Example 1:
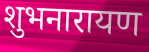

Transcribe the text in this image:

शुभनारायण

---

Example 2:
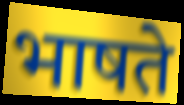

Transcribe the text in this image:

भाषते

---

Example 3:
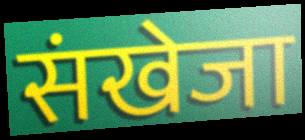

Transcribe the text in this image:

संखेजा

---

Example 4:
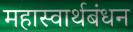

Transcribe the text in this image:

महास्वार्थबंधन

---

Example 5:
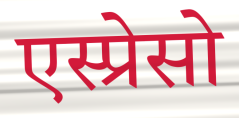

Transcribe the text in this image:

एस्प्रेसो